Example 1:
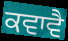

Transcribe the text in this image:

ਕਵਾਵੈ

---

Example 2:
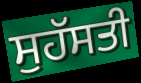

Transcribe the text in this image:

ਸੁਹੱਸਤੀ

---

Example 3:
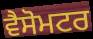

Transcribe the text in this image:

ਵੈਸੋਮਟਰ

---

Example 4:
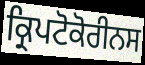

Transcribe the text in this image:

ਕ੍ਰਿਪਟੋਕੋਰੀਨਸ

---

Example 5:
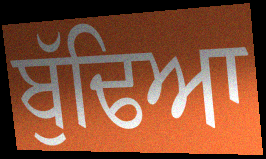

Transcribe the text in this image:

ਬੁੱਢਿਆ